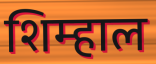
शिम्हाल